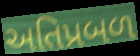
અતિપ્રબળ